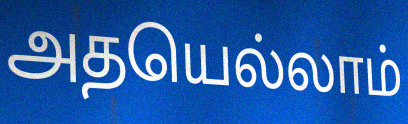
அதயெல்லாம்